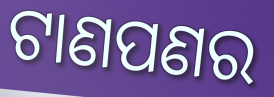
ଟାଣପଣର